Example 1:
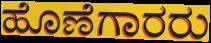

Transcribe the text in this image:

ಹೊಣೆಗಾರರು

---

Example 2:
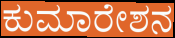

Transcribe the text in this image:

ಕುಮಾರೇಶನ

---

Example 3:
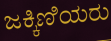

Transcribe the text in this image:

ಜಕ್ಕಿಣಿಯರು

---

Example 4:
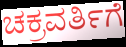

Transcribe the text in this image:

ಚಕ್ರವರ್ತಿಗೆ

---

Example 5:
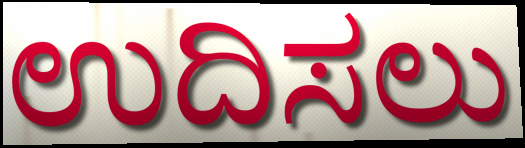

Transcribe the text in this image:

ಉದಿಸಲು